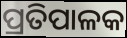
ପ୍ରତିପାଳକ